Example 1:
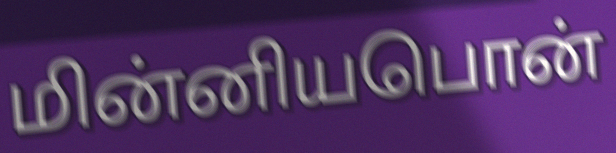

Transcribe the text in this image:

மின்னியபொன்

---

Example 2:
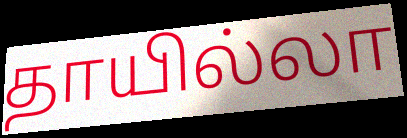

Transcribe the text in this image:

தாயில்லா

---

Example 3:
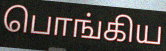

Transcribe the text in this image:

பொங்கிய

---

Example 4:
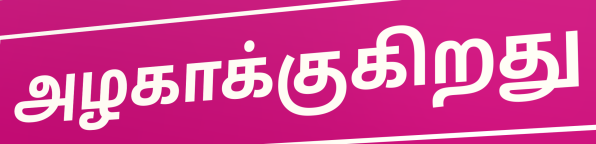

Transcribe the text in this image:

அழகாக்குகிறது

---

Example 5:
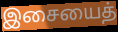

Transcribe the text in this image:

இசையைத்